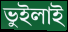
ভুইলাই